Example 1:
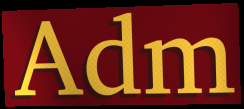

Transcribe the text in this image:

Adm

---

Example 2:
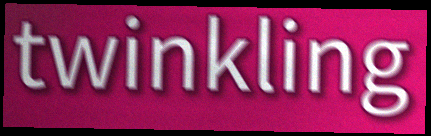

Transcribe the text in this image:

twinkling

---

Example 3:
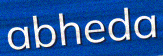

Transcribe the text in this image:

abheda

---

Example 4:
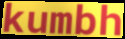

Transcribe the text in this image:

kumbh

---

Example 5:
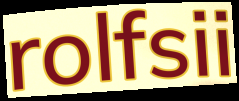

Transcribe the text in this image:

rolfsii